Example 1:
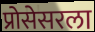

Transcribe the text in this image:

प्रोसेसरला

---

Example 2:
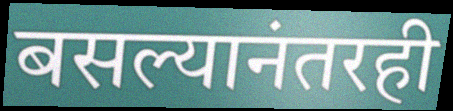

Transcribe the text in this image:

बसल्यानंतरही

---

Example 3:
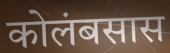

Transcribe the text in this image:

कोलंबसास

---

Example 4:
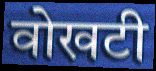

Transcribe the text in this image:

वोखटी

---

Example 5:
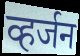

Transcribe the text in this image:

व्हर्जन